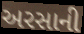
અરસાની